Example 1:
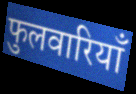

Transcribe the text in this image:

फुलवारियाँ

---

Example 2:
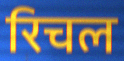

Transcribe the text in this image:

रिचल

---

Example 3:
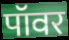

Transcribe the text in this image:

पॉवर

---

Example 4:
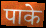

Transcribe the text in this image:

पाके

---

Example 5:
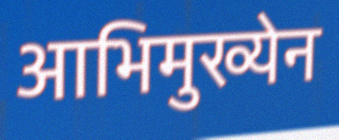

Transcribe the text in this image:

आभिमुख्येन